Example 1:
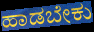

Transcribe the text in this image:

ಹಾಡಬೇಕು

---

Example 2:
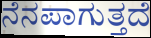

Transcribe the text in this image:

ನೆನಪಾಗುತ್ತದೆ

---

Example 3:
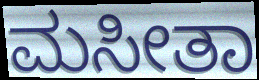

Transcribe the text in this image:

ಮಸೀತಾ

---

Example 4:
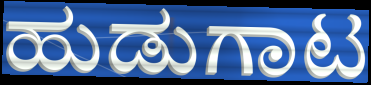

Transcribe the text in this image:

ಹುಡುಗಾಟ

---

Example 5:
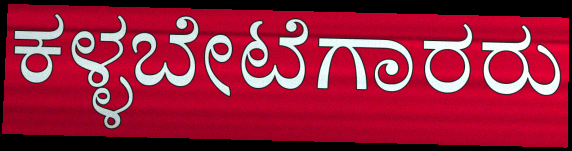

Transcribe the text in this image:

ಕಳ್ಳಬೇಟೆಗಾರರು